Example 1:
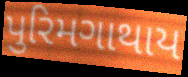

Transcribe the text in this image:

પુરિમગાથાય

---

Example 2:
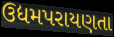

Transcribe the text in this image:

ઉદ્યમપરાયણતા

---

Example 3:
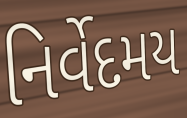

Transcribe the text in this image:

નિર્વેદમય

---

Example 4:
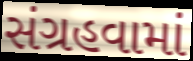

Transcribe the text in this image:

સંગ્રહવામાં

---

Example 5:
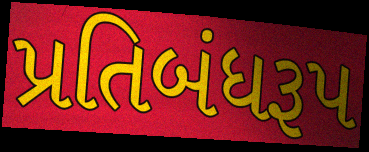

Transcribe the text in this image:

પ્રતિબંધરૂપ